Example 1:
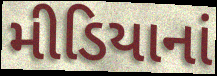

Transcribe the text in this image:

મીડિયાનાં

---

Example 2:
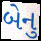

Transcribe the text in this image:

બેનુ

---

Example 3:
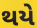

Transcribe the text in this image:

થયે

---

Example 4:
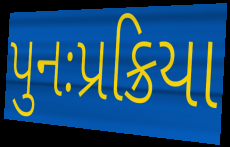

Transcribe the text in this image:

પુનઃપ્રક્રિયા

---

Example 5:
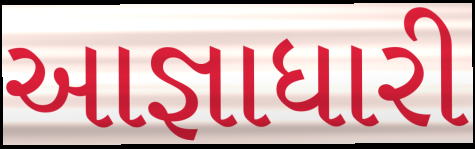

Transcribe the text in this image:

આજ્ઞાધારી